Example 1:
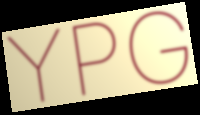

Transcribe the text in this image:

YPG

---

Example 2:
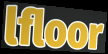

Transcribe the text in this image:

lfloor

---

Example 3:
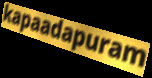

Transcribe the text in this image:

kapaadapuram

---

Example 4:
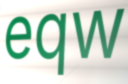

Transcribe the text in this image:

eqw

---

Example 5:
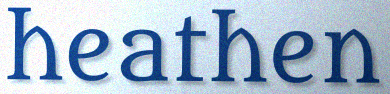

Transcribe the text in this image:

heathen